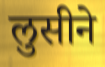
लुसीने